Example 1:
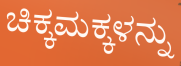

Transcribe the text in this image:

ಚಿಕ್ಕಮಕ್ಕಳನ್ನು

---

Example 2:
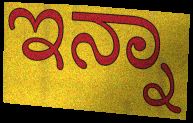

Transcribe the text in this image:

ಇನ್ನಾ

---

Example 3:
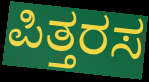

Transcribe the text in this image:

ಪಿತ್ತರಸ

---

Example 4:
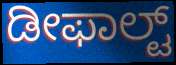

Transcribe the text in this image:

ಡೀಫಾಲ್ಟ್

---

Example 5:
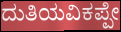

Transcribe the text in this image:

ದುತಿಯವಿಕಪ್ಪೇ